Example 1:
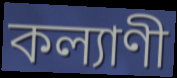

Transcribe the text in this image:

কল্যাণী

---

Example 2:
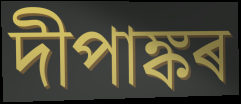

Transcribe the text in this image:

দীপাঙ্কৰ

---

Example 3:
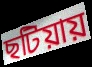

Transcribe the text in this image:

ছটিয়ায়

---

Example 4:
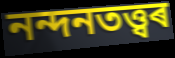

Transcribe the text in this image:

নন্দনতত্ত্বৰ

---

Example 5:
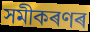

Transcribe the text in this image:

সমীকৰণৰ